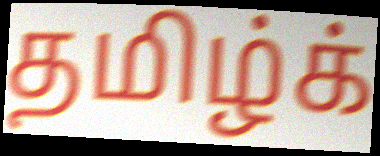
தமிழ்க்